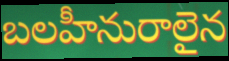
బలహీనురాలైన